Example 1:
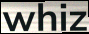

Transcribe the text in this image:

whiz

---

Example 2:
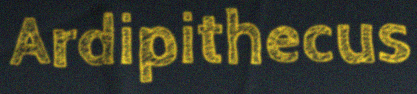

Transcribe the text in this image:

Ardipithecus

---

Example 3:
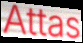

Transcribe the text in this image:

Attas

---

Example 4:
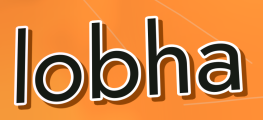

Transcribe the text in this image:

lobha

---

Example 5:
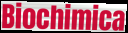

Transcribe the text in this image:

Biochimica